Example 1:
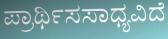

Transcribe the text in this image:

ಪ್ರಾರ್ಥಿಸಸಾಧ್ಯವಿದೆ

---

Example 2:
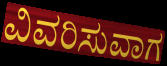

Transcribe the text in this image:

ವಿವರಿಸುವಾಗ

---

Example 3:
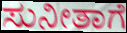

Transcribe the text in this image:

ಸುನೀತಾಗೆ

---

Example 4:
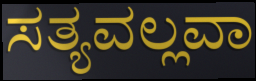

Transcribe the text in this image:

ಸತ್ಯವಲ್ಲವಾ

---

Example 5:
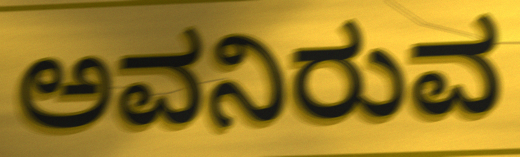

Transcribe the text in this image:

ಅವನಿರುವ